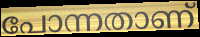
പോന്നതാണ്